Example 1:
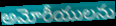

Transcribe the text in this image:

అమోరీయులను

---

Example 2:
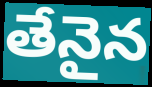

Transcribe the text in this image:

తేనైన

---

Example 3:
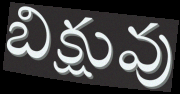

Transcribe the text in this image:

బిక్షువు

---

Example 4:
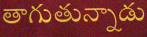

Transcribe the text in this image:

తాగుతున్నాడు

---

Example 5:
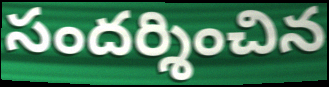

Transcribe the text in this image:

సందర్శించిన